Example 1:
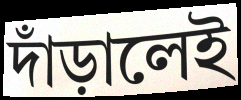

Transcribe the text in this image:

দাঁড়ালেই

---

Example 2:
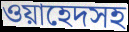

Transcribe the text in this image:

ওয়াহেদসহ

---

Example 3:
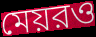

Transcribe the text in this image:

মেয়রও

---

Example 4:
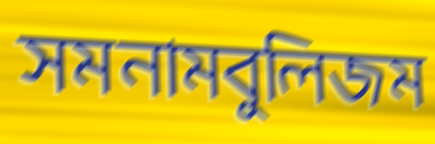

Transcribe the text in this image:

সমনামবুলিজম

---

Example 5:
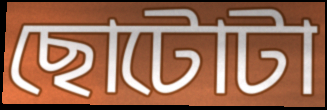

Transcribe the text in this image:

ছোটোটা